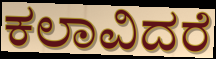
ಕಲಾವಿದರೆ